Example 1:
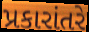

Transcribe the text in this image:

પ્રકારાંતરે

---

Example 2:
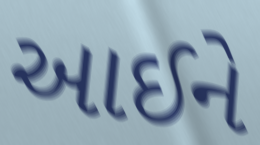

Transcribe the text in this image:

આઈને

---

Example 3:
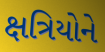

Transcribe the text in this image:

ક્ષત્રિયોને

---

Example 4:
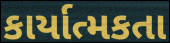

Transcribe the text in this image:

કાર્યાત્મકતા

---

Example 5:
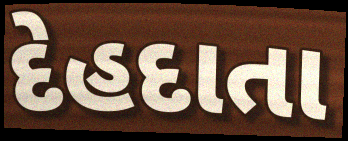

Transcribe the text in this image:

દેહદાતા